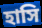
হাসি